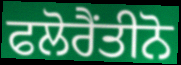
ਫਲੋਰੈਂਤੀਨੋ